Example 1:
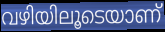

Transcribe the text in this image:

വഴിയിലൂടെയാണ്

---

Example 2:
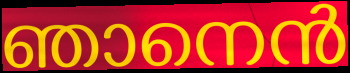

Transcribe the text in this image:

ഞാനെൻ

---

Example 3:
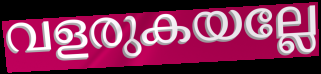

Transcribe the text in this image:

വളരുകയല്ലേ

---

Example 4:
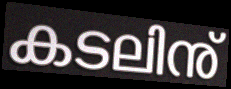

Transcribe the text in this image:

കടലിനു്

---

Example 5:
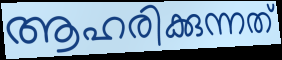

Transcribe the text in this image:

ആഹരിക്കുന്നത്